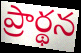
ప్రార్థన